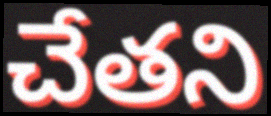
చేతని